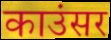
काउंसर